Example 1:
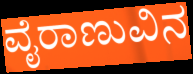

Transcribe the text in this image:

ವೈರಾಣುವಿನ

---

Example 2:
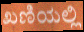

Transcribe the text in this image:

ಖಣಿಯಲ್ಲಿ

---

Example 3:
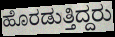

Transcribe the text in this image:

ಹೊರಡುತ್ತಿದ್ದರು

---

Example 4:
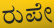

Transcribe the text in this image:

ರುಪೇ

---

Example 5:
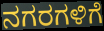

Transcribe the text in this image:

ನಗರಗಳಿಗೆ